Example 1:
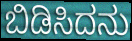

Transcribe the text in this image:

ಬಿಡಿಸಿದನು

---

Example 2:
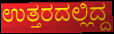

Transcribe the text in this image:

ಉತ್ತರದಲ್ಲಿದ್ದ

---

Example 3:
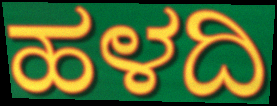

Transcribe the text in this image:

ಹಳದಿ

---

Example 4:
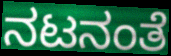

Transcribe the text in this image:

ನಟನಂತೆ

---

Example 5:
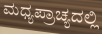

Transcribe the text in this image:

ಮಧ್ಯಪ್ರಾಚ್ಯದಲ್ಲಿ